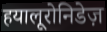
हयालूरोनिडेज़